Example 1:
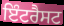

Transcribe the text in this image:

ਇੰਟਰੈਸਟ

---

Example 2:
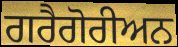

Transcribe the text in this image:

ਗਰੈਗੋਰੀਅਨ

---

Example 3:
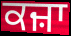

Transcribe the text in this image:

ਕਜ਼ਾ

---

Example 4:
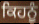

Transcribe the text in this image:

ਕਿਹਨੂੰ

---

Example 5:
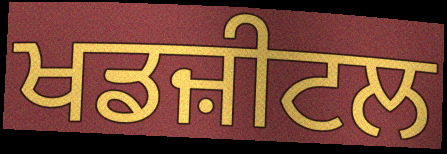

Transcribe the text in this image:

ਖਡਜ਼ੀਟਲ